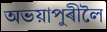
অভয়াপুৰীলৈ